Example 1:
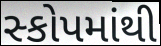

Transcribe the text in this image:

સ્કોપમાંથી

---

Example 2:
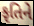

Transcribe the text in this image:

કૃતિને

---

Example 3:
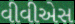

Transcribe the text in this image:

વીવીએસ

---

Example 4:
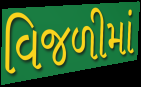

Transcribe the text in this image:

વિજળીમાં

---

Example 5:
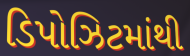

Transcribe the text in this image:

ડિપોઝિટમાંથી